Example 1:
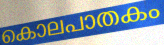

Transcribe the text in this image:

കൊലപാതകം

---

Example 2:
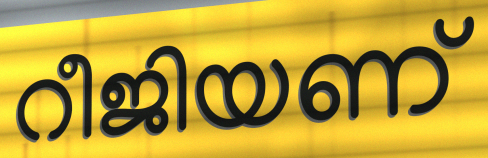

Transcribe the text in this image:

റീജിയണ്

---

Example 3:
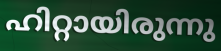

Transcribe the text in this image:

ഹിറ്റായിരുന്നു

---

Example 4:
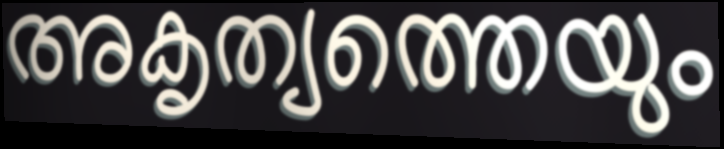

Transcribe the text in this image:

അകൃത്യത്തെയും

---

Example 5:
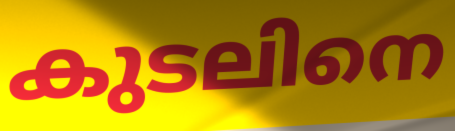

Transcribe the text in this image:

കുടലിനെ